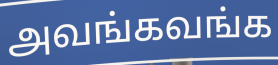
அவங்கவங்க